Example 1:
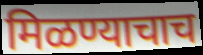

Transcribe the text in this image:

मिळण्याचाच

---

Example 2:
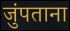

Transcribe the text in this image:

जुंपताना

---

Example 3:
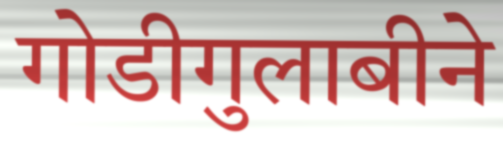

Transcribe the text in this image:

गोडीगुलाबीने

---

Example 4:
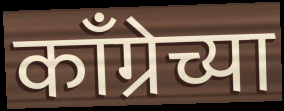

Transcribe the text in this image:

काँग्रेच्या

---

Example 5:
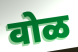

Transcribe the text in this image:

वोळ